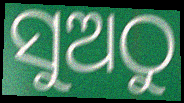
ସୁଅଠୁ